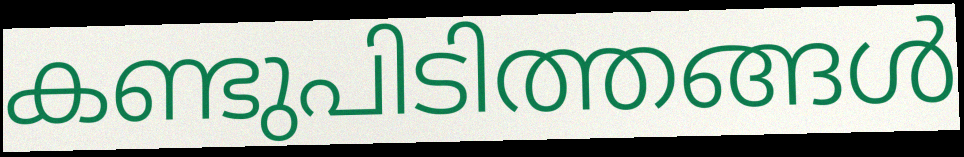
കണ്ടുപിടിത്തങ്ങൾ